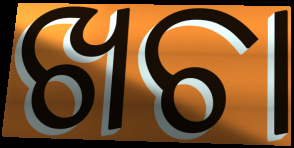
ଖଚା